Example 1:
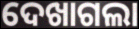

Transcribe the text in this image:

ଦେଖାଗଲା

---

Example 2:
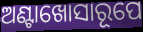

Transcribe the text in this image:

ଅଣ୍ଟାଖୋସାରୂପେ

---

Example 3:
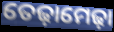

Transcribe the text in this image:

ତେଢ଼ାମେଢ଼ା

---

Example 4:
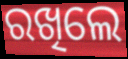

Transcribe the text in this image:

ରଖିଲେ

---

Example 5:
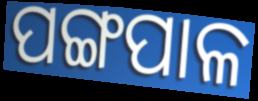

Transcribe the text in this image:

ପଙ୍ଗପାଳ